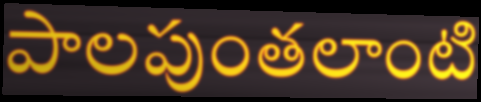
పాలపుంతలాంటి